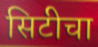
सिटीचा